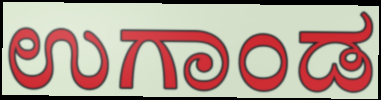
ಉಗಾಂಡ